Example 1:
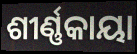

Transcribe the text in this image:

ଶୀର୍ଣ୍ଣକାୟା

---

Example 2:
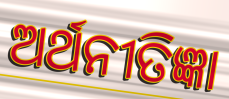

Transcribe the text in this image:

ଅର୍ଥନୀତିଜ୍ଞା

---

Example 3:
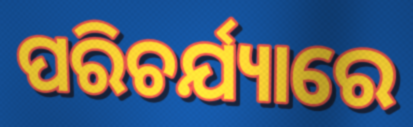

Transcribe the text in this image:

ପରିଚର୍ଯ୍ୟାରେ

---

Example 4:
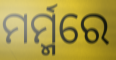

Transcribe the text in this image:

ମର୍ମ୍ମରେ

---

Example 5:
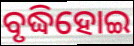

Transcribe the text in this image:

ବୃଦ୍ଧିହୋଇ